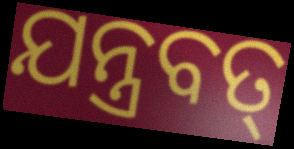
ଯନ୍ତ୍ରବତ୍